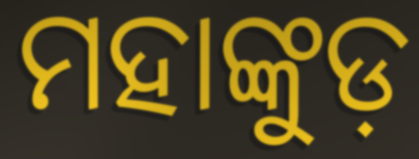
ମହାଙ୍କୁଡ଼